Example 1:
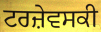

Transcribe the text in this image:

ਟਰਜ਼ੇਵਸਕੀ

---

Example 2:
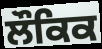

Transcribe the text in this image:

ਲੌਕਿਕ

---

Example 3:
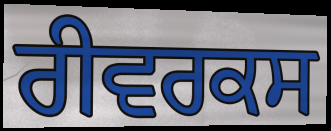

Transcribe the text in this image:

ਰੀਵਰਕਸ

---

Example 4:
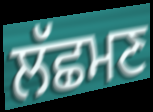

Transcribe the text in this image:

ਲੱਛਮਣ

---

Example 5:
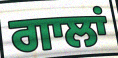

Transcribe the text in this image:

ਗਾਲਾਂ